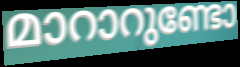
മാറാറുണ്ടോ